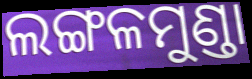
ଲଙ୍ଗଳମୁଣ୍ଡା